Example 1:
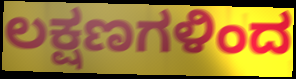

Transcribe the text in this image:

ಲಕ್ಷಣಗಳಿಂದ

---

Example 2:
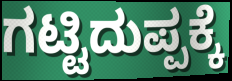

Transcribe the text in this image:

ಗಟ್ಟಿದುಪ್ಪಕ್ಕೆ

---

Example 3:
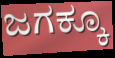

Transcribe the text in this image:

ಜಗಕ್ಕೂ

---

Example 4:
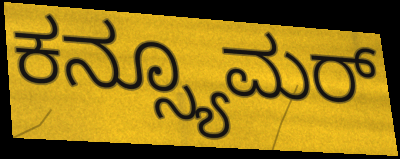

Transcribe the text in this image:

ಕನ್ಸ್ಯೂಮರ್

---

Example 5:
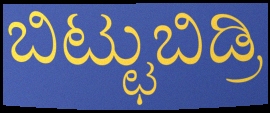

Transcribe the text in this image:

ಬಿಟ್ಟುಬಿಡ್ರಿ